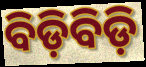
ବିଡ଼ିବିଡ଼ି